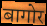
बागोर